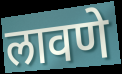
लावणे